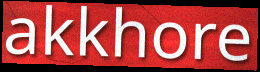
akkhore